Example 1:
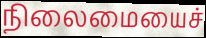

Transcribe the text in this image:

நிலைமையைச்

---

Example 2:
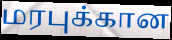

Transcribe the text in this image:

மரபுக்கான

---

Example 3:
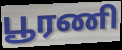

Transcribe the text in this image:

பூரணி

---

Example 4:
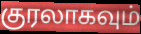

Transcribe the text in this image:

குரலாகவும்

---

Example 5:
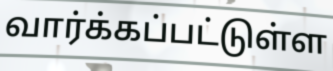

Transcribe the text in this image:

வார்க்கப்பட்டுள்ள